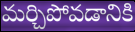
మర్చిపోవడానికి